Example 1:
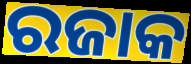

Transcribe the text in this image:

ରଜାକ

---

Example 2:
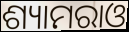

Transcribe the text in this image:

ଶ୍ୟାମରାଓ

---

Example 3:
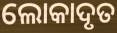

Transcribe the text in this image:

ଲୋକାଦୃତ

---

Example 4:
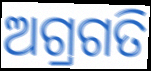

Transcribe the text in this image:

ଅଗ୍ରଗତି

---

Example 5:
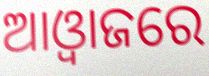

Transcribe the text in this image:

ଆଓ୍ୱାଜରେ